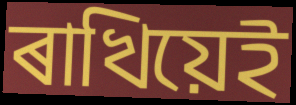
ৰাখিয়েই